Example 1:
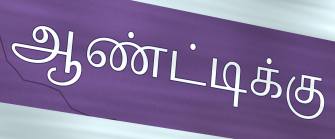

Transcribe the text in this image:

ஆண்ட்டிக்கு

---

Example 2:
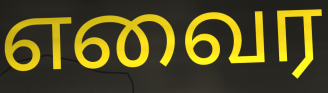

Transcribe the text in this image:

எவைர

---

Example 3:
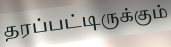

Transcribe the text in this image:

தரப்பட்டிருக்கும்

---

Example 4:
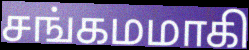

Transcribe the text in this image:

சங்கமமாகி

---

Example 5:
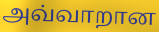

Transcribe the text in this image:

அவ்வாறான